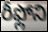
రీఫ్లోని